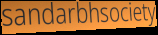
sandarbhsociety